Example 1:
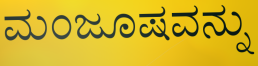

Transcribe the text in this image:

ಮಂಜೂಷವನ್ನು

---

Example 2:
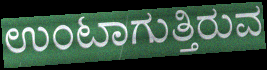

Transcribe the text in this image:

ಉಂಟಾಗುತ್ತಿರುವ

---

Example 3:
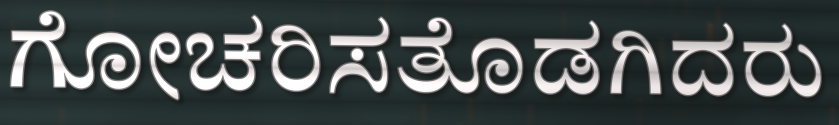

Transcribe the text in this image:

ಗೋಚರಿಸತೊಡಗಿದರು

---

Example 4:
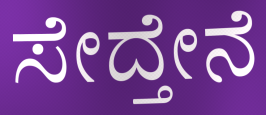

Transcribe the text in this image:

ಸೇದ್ತೇನೆ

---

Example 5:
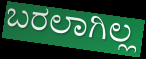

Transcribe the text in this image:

ಬರಲಾಗಿಲ್ಲ